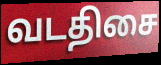
வடதிசை